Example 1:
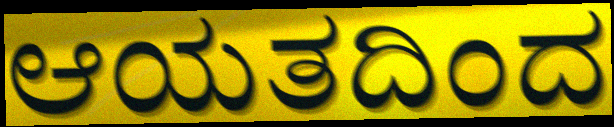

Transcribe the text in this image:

ಆಯತದಿಂದ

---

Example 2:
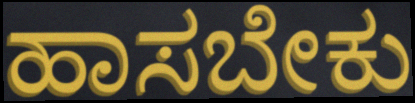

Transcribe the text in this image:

ಹಾಸಬೇಕು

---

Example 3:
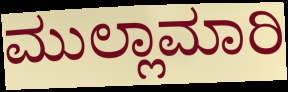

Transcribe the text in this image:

ಮುಲ್ಲಾಮಾರಿ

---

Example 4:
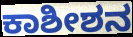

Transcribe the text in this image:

ಕಾಶೀಶನ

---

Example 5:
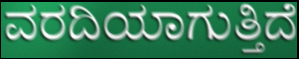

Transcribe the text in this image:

ವರದಿಯಾಗುತ್ತಿದೆ